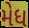
મેધ